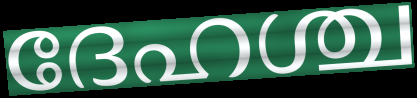
ദേഹശ്ച